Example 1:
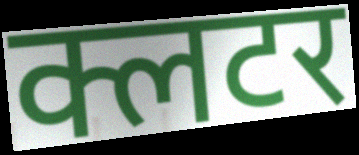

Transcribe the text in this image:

क्लटर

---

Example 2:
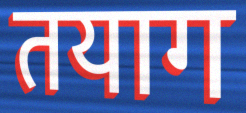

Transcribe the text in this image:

तयाग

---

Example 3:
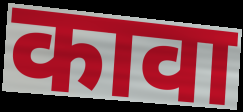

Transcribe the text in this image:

कावा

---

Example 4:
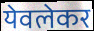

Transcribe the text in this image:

येवलेकर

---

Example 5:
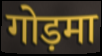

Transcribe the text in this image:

गोड़मा